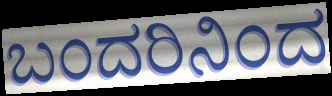
ಬಂದರಿನಿಂದ